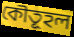
কৌতূহল